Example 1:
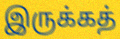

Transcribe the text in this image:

இருக்கத்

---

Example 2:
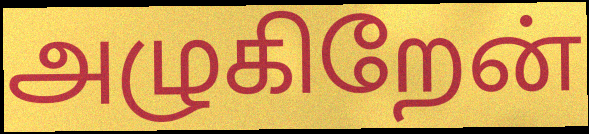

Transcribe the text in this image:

அழுகிறேன்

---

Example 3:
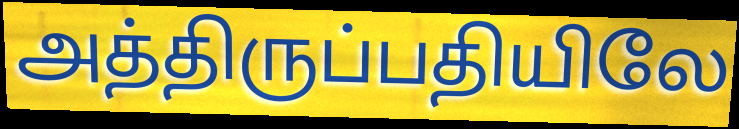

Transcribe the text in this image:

அத்திருப்பதியிலே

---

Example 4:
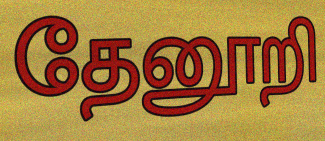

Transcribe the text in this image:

தேனூறி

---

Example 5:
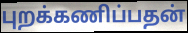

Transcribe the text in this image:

புறக்கணிப்பதன்